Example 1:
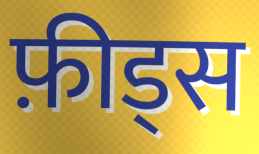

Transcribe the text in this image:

फ़ीड्स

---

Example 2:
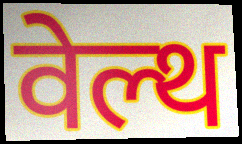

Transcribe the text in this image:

वेल्‍थ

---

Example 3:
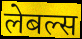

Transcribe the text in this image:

लेबल्स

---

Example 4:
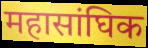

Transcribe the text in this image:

महासांघिक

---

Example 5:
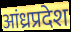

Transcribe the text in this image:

आंध्रप्रदेश